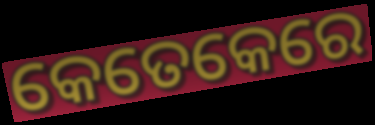
କେତେକେରେ